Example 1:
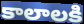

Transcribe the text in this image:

కాలాలకి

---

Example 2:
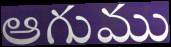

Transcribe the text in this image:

ఆగుము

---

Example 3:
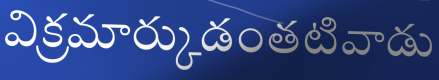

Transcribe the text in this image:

విక్రమార్కుడంతటివాడు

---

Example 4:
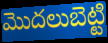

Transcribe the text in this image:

మొదలుబెట్టి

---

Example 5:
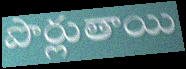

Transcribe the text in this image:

పొర్లుతాయి